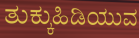
ತುಕ್ಕುಹಿಡಿಯುವ